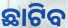
ଛାଟିବ